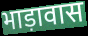
भाड़ावास